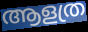
ആളത്ര